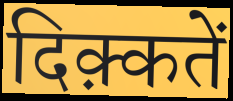
दिक़्कतें